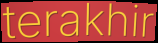
terakhir